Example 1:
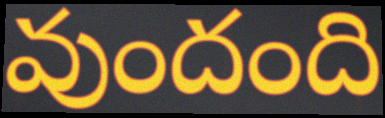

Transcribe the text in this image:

వుందంది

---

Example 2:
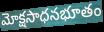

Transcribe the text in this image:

మోక్షసాధనభూతం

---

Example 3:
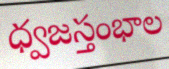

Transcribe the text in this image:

ధ్వజస్తంభాల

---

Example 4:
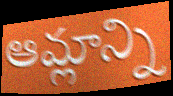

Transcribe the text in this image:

ఆమ్లాన్ని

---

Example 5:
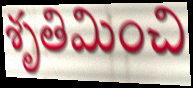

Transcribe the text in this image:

శృతిమించి